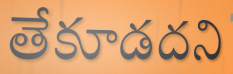
తేకూడదని